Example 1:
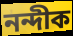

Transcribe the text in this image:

নন্দীক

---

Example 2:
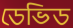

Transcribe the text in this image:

ডেভিড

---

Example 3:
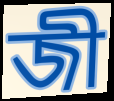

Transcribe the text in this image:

জী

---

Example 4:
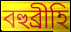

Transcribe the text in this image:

বহুব্ৰীহি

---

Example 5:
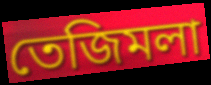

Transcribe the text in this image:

তেজিমলা